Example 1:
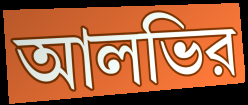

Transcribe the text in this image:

আলভির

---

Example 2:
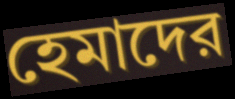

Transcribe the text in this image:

হেমাদের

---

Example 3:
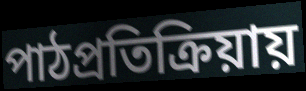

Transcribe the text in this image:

পাঠপ্রতিক্রিয়ায়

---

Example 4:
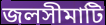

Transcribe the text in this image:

জলসীমাটি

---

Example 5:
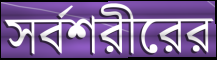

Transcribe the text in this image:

সর্বশরীরের